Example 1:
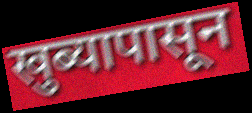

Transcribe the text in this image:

खुब्यापासून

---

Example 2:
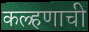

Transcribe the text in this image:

कल्हणाची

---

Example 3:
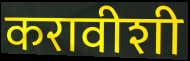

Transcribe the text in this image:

करावीशी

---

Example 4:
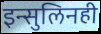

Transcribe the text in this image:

इन्सुलिनही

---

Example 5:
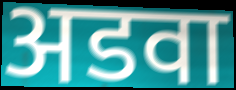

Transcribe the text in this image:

अडवा